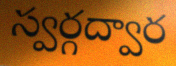
స్వర్గద్వార